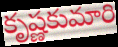
కృష్ణకుమారి